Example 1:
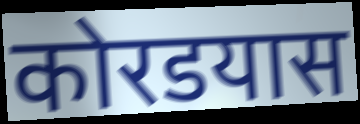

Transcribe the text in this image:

कोरडयास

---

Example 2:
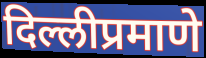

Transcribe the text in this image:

दिल्लीप्रमाणे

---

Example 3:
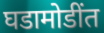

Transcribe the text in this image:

घडामोडींत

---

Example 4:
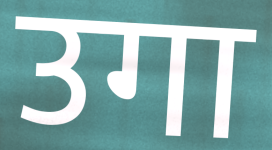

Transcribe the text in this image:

उगा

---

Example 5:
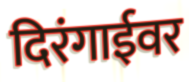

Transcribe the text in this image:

दिरंगाईवर